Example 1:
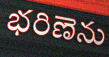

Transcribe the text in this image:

భరిణెను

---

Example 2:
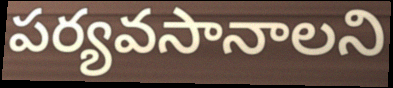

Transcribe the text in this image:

పర్యవసానాలని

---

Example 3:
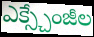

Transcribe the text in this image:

ఎక్స్చేంజీల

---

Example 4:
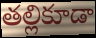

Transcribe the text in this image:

తల్లికూడా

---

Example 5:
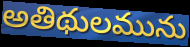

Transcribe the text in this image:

అతిథులమును